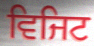
ਵਿਜਿਟ